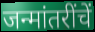
जन्मांतरींचें